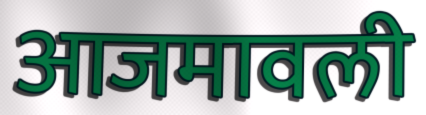
आजमावली